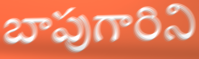
బాపుగారిని